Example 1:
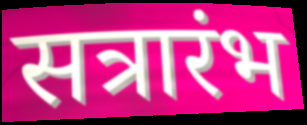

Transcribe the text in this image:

सत्रारंभ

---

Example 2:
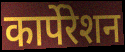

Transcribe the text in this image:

कार्पेरेशन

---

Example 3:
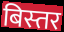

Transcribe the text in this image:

बिस्‍तर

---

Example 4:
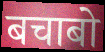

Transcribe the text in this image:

बचाबो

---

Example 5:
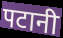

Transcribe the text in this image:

पटानी